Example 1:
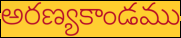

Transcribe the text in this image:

అరణ్యకాండము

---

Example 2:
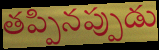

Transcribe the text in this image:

తప్పినప్పుడు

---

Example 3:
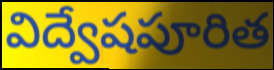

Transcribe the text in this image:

విద్వేషపూరిత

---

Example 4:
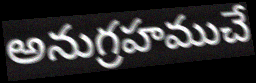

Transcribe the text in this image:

అనుగ్రహముచే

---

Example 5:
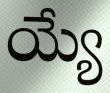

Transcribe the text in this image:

య్యే